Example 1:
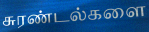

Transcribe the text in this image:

சுரண்டல்களை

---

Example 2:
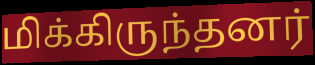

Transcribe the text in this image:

மிக்கிருந்தனர்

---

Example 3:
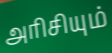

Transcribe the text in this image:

அரிசியும்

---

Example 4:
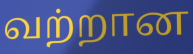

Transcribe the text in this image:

வற்றான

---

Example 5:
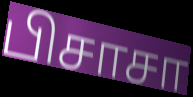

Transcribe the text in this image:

பிசாசா